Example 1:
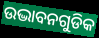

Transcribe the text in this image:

ଉଦ୍ଭାବନଗୁଡିକ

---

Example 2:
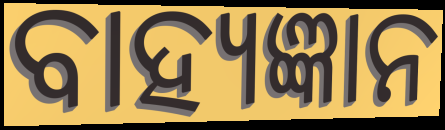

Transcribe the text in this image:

ବାହ୍ୟଜ୍ଞାନ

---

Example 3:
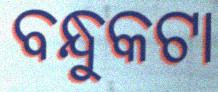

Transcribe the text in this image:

ବନ୍ଧୁକଟା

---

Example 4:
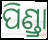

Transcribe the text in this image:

ପିଣ୍ଡ୍ରା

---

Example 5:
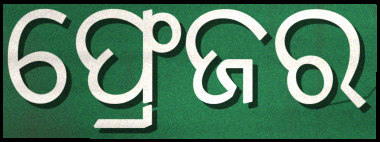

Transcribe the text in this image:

ଫ୍ରେଜର